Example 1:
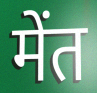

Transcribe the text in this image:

मेंत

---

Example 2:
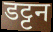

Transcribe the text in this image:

डट्टन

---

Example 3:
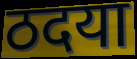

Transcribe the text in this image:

ठदया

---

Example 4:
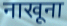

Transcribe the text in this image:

नाखूना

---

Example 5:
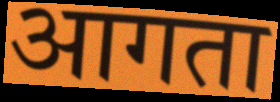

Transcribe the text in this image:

आगता